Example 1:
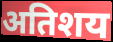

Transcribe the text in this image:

अतिशय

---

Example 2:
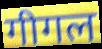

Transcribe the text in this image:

गीगल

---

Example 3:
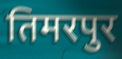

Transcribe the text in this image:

तिमरपुर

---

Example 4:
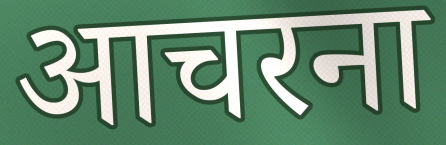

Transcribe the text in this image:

आचरना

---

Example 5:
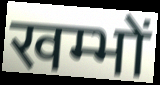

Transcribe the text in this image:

खम्भों